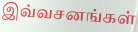
இவ்வசனங்கள்